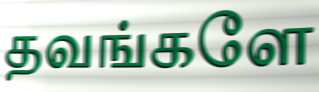
தவங்களே